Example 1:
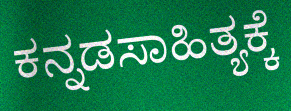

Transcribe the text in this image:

ಕನ್ನಡಸಾಹಿತ್ಯಕ್ಕೆ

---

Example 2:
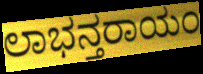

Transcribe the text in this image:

ಲಾಭನ್ತರಾಯಂ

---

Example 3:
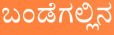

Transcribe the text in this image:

ಬಂಡೆಗಲ್ಲಿನ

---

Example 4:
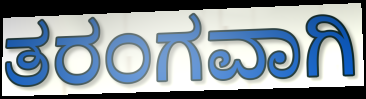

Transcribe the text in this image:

ತರಂಗವಾಗಿ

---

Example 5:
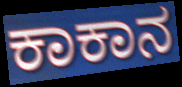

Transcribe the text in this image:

ಕಾಕಾನ